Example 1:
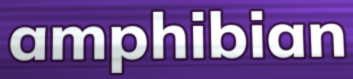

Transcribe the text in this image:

amphibian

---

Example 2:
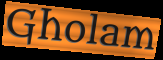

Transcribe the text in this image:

Gholam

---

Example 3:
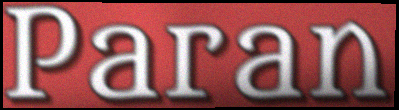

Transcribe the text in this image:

Paran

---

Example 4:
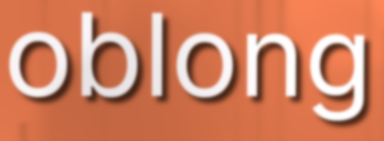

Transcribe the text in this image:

oblong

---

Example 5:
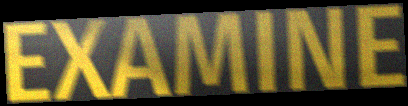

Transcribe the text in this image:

EXAMINE